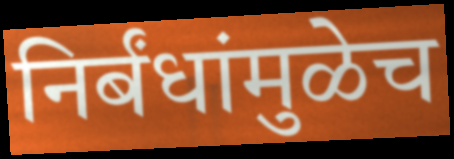
निर्बंधांमुळेच